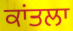
ਕਾਂਤਲਾ